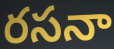
రసనా